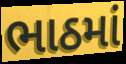
ભાઠમાં